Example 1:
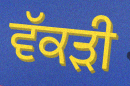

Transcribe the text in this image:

ਵੱਕੜੀ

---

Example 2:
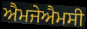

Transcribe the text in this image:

ਐਮਜੇਐਮਸੀ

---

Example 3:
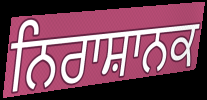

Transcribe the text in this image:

ਨਿਰਾਸ਼ਾਨਕ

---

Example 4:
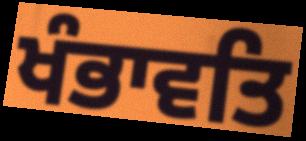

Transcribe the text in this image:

ਖੰਭਾਵਤਿ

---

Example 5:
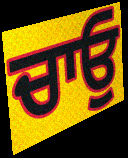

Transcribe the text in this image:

ਚਾਓੁ